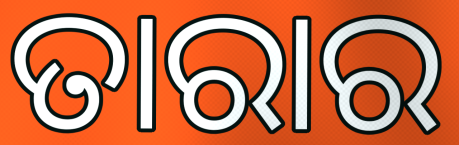
ତାରାର